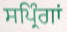
ਸਪ੍ਰਿੰਗਾਂ